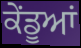
ਕੇਂਡੂਆਂ